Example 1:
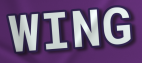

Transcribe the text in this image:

WING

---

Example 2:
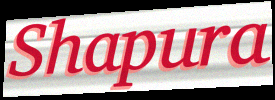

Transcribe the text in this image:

Shapura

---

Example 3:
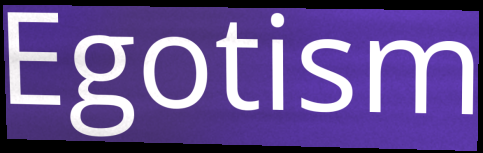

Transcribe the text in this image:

Egotism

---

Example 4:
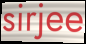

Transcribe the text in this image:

sirjee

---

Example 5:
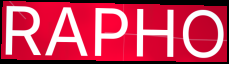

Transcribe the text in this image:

RAPHO